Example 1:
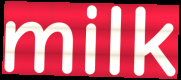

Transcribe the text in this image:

milk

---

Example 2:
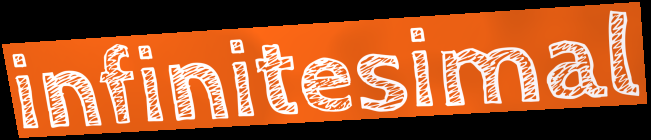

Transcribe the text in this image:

infinitesimal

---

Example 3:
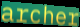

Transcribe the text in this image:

archer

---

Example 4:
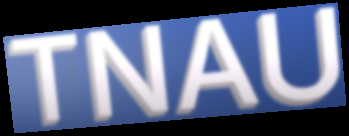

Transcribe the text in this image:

TNAU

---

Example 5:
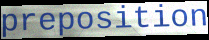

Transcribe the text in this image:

preposition